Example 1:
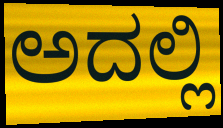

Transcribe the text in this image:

ಅದಲ್ಲಿ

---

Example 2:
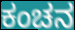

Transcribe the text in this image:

ಕಂಚನ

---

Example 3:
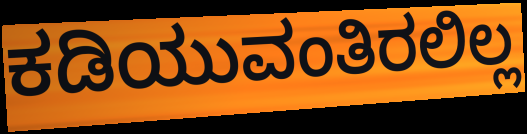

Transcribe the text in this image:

ಕಡಿಯುವಂತಿರಲಿಲ್ಲ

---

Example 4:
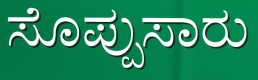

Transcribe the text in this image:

ಸೊಪ್ಪುಸಾರು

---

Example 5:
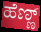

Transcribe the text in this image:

ಹೆಣ್ಣ್